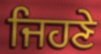
ਜਿਹਣੇ